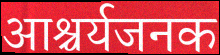
आश्चर्यजनक